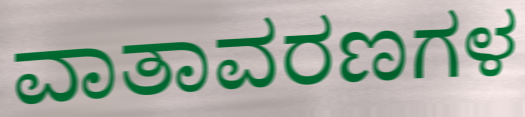
ವಾತಾವರಣಗಳ